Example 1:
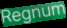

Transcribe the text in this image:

Regnum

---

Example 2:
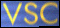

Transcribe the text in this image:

VSC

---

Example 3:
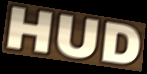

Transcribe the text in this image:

HUD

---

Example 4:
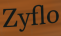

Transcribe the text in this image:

Zyflo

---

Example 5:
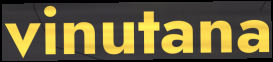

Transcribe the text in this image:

vinutana